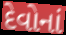
દેવોનાં